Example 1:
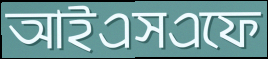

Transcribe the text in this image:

আইএসএফে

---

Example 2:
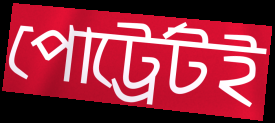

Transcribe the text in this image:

পোর্ট্রেটই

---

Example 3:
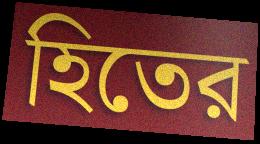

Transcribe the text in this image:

হিতের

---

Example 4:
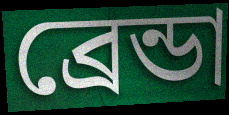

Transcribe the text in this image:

ব্রেন্ডা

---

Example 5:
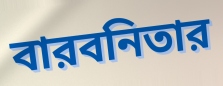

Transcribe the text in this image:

বারবনিতার